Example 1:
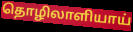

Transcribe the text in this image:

தொழிலாளியாய்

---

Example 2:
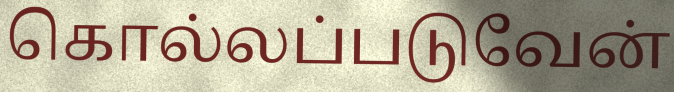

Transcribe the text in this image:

கொல்லப்படுவேன்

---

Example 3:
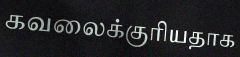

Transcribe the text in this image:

கவலைக்குரியதாக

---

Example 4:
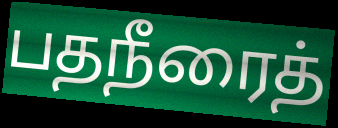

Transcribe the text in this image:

பதநீரைத்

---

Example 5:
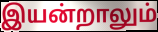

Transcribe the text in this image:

இயன்றாலும்